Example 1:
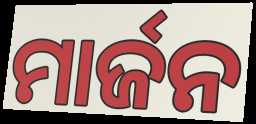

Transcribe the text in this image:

ମାର୍ଜନ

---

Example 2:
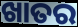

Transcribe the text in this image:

ଖାତର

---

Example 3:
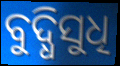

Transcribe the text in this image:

ବୁଦ୍ଧିସୁଧି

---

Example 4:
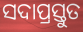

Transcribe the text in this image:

ସଦାପ୍ରସ୍ତୁତ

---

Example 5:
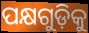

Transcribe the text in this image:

ପକ୍ଷଗୁଡ଼ିକୁ